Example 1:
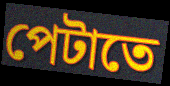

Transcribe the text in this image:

পেটাতে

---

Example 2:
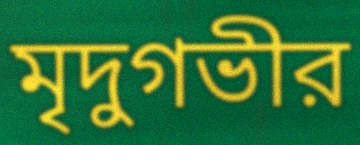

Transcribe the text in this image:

মৃদুগভীর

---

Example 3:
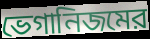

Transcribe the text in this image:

ভেগানিজমের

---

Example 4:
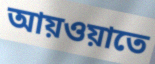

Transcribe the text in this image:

আয়ওয়াতে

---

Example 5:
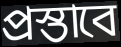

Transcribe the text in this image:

প্রস্তাবে